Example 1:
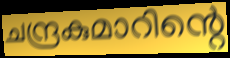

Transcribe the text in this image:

ചന്ദ്രകുമാറിന്റെ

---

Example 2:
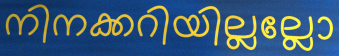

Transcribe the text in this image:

നിനക്കറിയില്ലല്ലോ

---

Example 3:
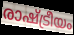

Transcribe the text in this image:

രാഷ്ട്രീയം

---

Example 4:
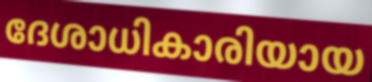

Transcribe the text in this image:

ദേശാധികാരിയായ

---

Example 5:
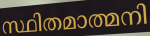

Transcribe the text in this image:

സ്ഥിതമാത്മനി